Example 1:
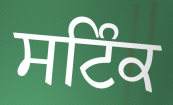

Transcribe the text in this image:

ਸਟਿੰਕ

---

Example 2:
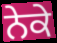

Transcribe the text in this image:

ਨੇਕੇ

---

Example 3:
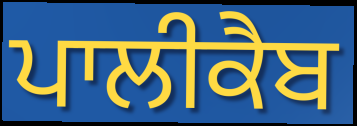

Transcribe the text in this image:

ਪਾਲੀਕੈਬ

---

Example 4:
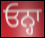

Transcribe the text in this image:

ਓਨ੍ਹਾ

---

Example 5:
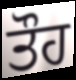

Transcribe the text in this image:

ਤੌਹ